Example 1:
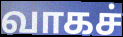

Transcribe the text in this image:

வாகச்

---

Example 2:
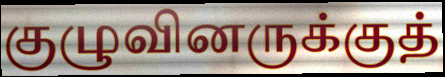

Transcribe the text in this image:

குழுவினருக்குத்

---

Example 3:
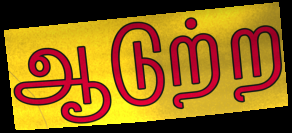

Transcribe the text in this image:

ஆடுற்ற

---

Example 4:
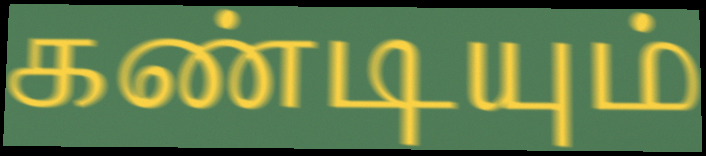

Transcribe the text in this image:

கண்டியும்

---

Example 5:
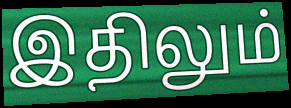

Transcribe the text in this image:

இதிலும்